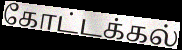
கோட்டக்கல்